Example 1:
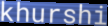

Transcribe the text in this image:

khurshi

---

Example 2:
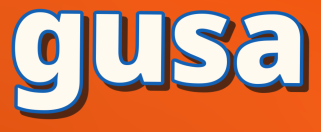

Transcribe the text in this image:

gusa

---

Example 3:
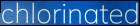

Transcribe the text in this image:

chlorinated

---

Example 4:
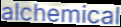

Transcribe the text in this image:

alchemical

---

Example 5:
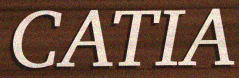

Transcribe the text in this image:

CATIA